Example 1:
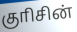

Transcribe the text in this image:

குரிசின்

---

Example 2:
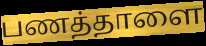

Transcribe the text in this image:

பணத்தாளை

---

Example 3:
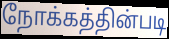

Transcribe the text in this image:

நோக்கத்தின்படி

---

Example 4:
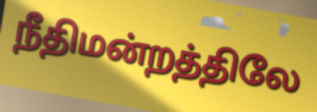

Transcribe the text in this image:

நீதிமன்றத்திலே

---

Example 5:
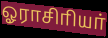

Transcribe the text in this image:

ஓராசிரியர்